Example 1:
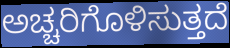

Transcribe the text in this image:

ಅಚ್ಚರಿಗೊಳಿಸುತ್ತದೆ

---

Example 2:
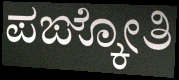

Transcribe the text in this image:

ಪಙ್ಕೋತಿ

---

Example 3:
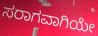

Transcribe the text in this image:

ಸರಾಗವಾಗಿಯೇ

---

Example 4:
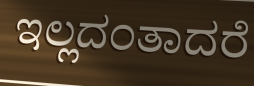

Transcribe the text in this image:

ಇಲ್ಲದಂತಾದರೆ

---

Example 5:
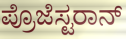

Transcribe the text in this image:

ಪ್ರೊಜೆಸ್ಟರಾನ್